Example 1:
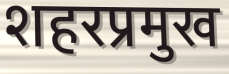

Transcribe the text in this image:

शहरप्रमुख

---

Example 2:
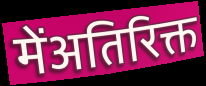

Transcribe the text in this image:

मेंअतिरिक्त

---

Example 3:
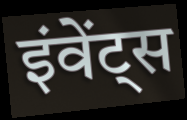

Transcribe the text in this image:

इंवेंट्स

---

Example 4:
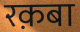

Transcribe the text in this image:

रक़बा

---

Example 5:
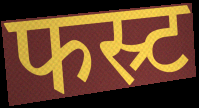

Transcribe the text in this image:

फस्र्ट